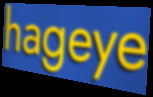
hageye